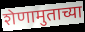
शेणामुताच्या